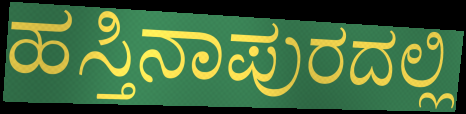
ಹಸ್ತಿನಾಪುರದಲ್ಲಿ